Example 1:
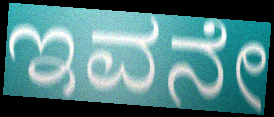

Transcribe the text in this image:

ಇವನೇ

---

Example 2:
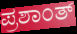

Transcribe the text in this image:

ಪ್ರಶಾಂತ್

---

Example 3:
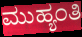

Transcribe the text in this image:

ಮುಹ್ಯಂತಿ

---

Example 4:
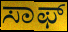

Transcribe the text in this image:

ಸಾಫ್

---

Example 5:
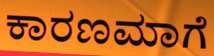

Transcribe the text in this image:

ಕಾರಣಮಾಗೆ